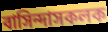
বাসিন্দাসকলক